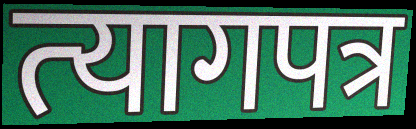
त्‍यागपत्र